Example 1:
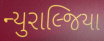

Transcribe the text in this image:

ન્યુરાલ્જિયા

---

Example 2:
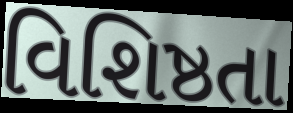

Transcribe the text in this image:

વિશિષ્ઠતા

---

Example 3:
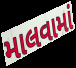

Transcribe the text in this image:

માલવામાં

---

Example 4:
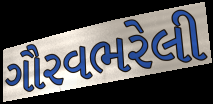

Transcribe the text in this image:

ગૌરવભરેલી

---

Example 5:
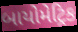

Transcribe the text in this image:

બાયોમેટ્રિક